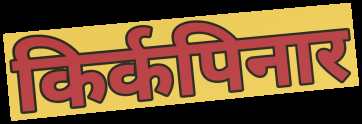
किर्कपिनार